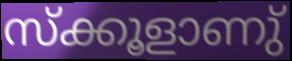
സ്ക്കൂളാണു്